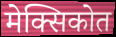
मेक्सिकोत